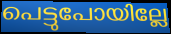
പെട്ടുപോയില്ലേ